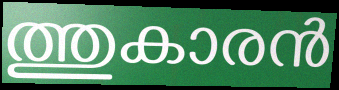
ത്തുകാരൻ